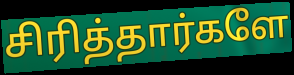
சிரித்தார்களே